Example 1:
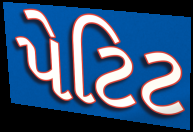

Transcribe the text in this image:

પેટિટ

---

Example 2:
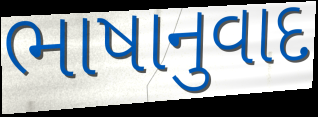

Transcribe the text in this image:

ભાષાનુવાદ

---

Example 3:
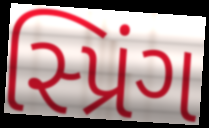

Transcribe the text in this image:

સ્પ્રિંગ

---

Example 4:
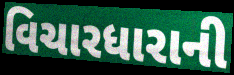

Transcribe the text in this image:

વિચારધારાની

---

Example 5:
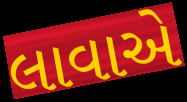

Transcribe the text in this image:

લાવાએ